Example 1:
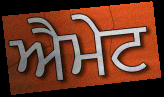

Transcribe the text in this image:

ਐਮੇਟ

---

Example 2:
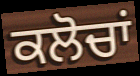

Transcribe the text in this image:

ਕਲੋਚਾਂ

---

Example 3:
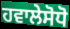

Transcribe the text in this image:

ਹਵਾਲੇਸੋਧੋ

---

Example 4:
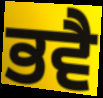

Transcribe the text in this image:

ਭਵੈ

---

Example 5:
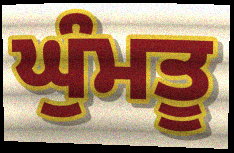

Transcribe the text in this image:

ਘੁੰਮਤੂ